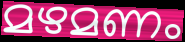
മഴമണം